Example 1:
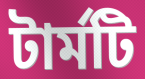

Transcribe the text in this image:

টার্মটি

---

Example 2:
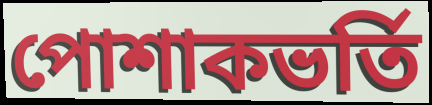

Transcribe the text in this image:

পোশাকভর্তি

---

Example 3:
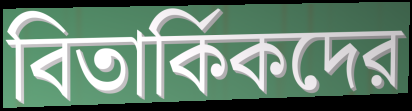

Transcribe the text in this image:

বিতার্কিকদের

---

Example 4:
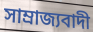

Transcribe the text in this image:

সাম্রাজ্যবাদী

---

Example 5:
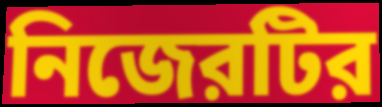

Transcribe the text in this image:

নিজেরটির